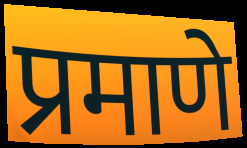
प्रमाणे